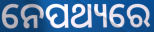
ନେପଥ୍ୟରେ